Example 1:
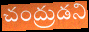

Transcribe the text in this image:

చంద్రుడని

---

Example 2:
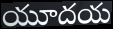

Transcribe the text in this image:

యూదయ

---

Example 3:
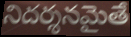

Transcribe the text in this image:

నిదర్శనమైతే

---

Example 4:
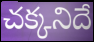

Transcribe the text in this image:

చక్కనిదే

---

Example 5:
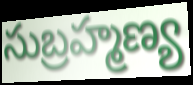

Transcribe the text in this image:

సుబ్రహ్మణ్య